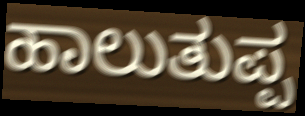
ಹಾಲುತುಪ್ಪ